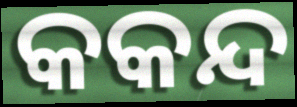
କକନ୍ଦ